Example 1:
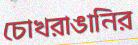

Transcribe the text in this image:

চোখরাঙানির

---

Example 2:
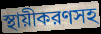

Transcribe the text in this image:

স্থায়ীকরণসহ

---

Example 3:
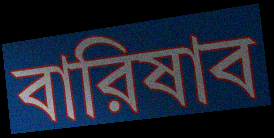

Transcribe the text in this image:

বারিষাব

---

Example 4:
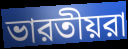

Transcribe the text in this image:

ভারতীয়রা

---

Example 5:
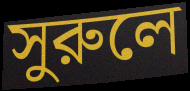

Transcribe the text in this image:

সুরুলে